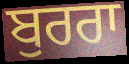
ਬੁਰਰਾ